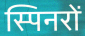
स्पिनरों